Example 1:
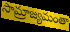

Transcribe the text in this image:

సామ్రాజ్యమంతా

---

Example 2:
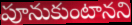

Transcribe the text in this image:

పూనుకుంటానని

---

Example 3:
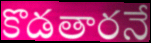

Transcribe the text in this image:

కొడతారనే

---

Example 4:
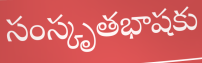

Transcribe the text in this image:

సంస్కృతభాషకు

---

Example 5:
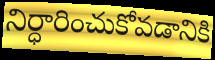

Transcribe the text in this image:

నిర్ధారించుకోవడానికి